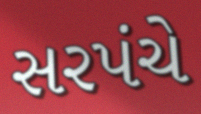
સરપંચે